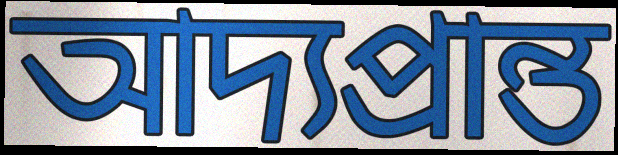
আদ্যপ্রান্ত